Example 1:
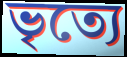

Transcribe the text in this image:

ভৃত্যে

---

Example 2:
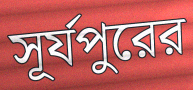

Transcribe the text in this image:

সূর্যপুরের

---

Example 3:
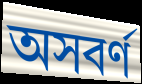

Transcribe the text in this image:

অসবর্ণ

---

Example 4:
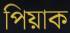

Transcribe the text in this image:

পিয়াক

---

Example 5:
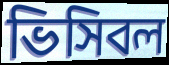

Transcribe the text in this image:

ভিসিবল